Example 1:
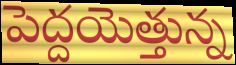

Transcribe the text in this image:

పెద్దయెత్తున్న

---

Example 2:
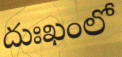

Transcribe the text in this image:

దుఃఖంలో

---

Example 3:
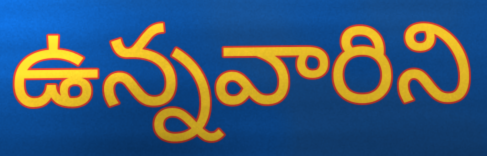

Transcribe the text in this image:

ఉన్నవారిని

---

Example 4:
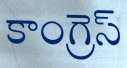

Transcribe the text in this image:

కాంగ్రెస్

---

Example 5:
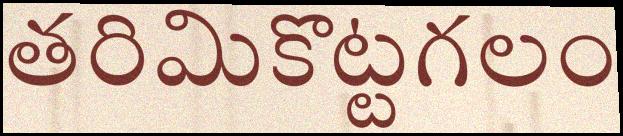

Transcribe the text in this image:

తరిమికొట్టగలం